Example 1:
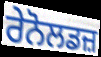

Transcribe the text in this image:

ਰੇਨੋਲਡਜ਼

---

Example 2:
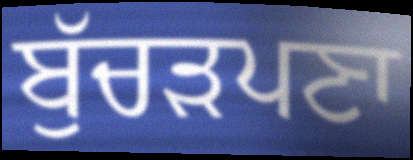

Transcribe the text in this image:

ਬੁੱਚੜਪਣਾ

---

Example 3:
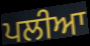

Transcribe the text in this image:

ਪਲੀਆ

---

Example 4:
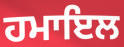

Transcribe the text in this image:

ਹਮਾਇਲ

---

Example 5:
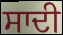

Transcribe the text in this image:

ਸਾਦੀ